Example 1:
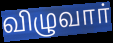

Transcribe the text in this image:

விழுவார்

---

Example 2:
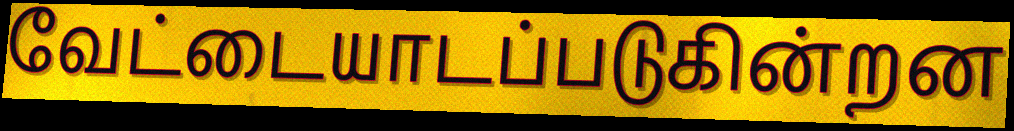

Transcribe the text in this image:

வேட்டையாடப்படுகின்றன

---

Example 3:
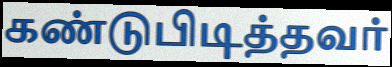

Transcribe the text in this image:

கண்டுபிடித்தவர்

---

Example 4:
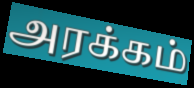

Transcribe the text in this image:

அரக்கம்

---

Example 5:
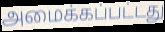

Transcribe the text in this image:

அமைக்கப்பட்டது